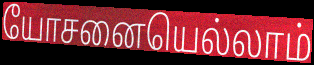
யோசனையெல்லாம்